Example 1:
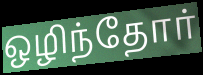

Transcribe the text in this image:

ஒழிந்தோர்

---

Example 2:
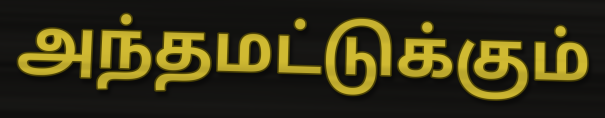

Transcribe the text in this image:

அந்தமட்டுக்கும்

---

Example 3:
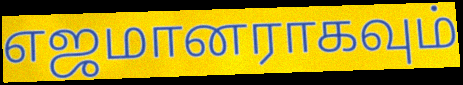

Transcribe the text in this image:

எஜமானராகவும்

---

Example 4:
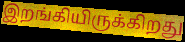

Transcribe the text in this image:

இறங்கியிருக்கிறது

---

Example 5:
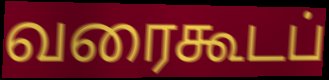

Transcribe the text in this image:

வரைகூடப்